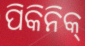
ପିକିନିକ୍